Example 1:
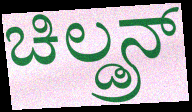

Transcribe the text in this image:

ಚಿಲ್ಡ್ರನ್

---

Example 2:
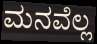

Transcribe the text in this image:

ಮನವೆಲ್ಲ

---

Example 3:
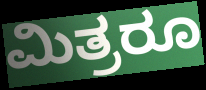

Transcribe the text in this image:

ಮಿತ್ರರೂ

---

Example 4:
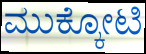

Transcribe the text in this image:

ಮುಕ್ಕೋಟಿ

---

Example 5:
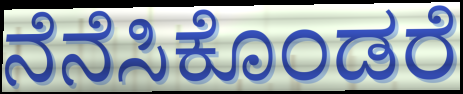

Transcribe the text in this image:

ನೆನೆಸಿಕೊಂಡರೆ